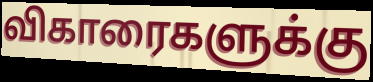
விகாரைகளுக்கு